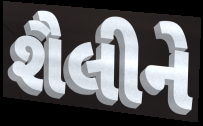
શૈલીને